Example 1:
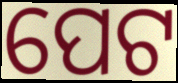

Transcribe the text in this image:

ପେଟ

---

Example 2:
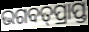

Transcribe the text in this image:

ଭଗବତ୍‌ପ୍ରାପ୍ତ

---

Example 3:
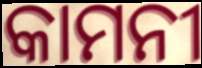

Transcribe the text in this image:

କାମନୀ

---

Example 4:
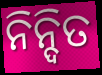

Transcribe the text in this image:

ନିନ୍ଦିତ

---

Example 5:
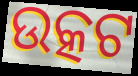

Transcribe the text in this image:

ଉତ୍କଟ